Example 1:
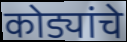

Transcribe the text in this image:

कोड्यांचे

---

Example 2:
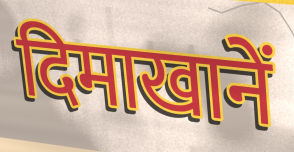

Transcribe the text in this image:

दिमाखानें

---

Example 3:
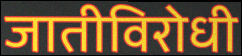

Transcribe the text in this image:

जातीविरोधी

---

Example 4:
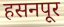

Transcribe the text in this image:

हसनपूर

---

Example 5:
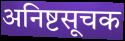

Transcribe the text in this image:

अनिष्टसूचक